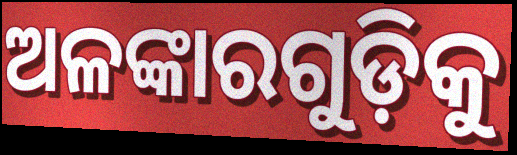
ଅଳଙ୍କାରଗୁଡ଼ିକୁ